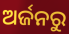
ଅର୍ଜନରୁ